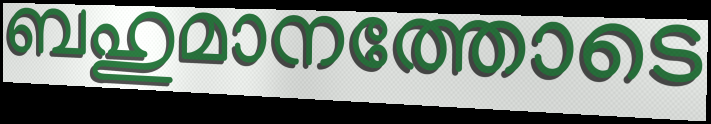
ബഹുമാനത്തോടെ